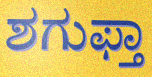
ಶಗುಫ್ತಾ